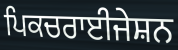
ਪਿਕਚਰਾਈਜੇਸ਼ਨ